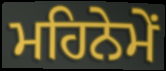
ਮਹਿਨੇਮੇਂ